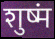
शुष्मं